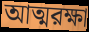
আত্মরক্ষা